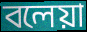
বলেয়া